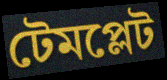
টেমপ্লেট